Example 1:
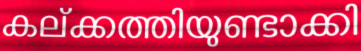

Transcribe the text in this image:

കല്ക്കത്തിയുണ്ടാക്കി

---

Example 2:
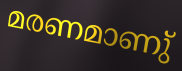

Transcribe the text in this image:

മരണമാണു്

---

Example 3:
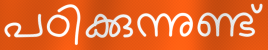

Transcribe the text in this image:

പഠിക്കുന്നുണ്ട്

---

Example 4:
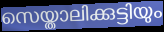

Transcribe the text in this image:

സെയ്താലിക്കുട്ടിയും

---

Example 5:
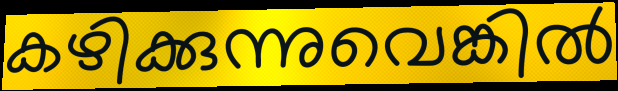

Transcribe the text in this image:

കഴിക്കുന്നുവെങ്കിൽ